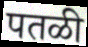
पतळी